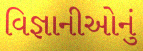
વિજ્ઞાનીઓનું